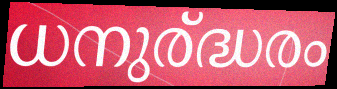
ധനുര്ദ്ധരം